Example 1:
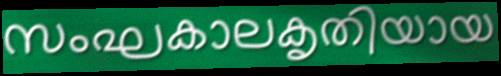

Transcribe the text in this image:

സംഘകാലകൃതിയായ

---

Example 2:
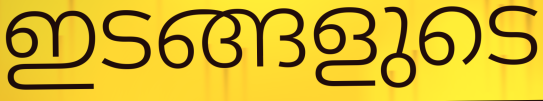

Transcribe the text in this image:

ഇടങ്ങളുടെ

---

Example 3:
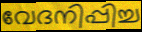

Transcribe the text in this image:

വേദനിപ്പിച്ച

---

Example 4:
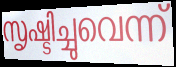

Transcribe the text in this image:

സൃഷ്ടിച്ചുവെന്ന്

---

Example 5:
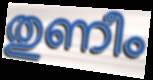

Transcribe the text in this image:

തുണീം